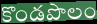
కొండపొలం